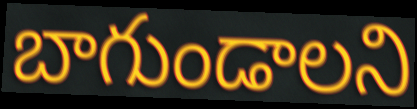
బాగుండాలని